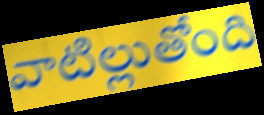
వాటిల్లుతోంది